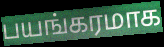
பயங்கரமாக